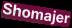
Shomajer